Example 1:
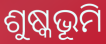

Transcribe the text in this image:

ଶୁଷ୍କଭୂମି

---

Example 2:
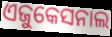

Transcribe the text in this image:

ଏଜୁକେସନାଲ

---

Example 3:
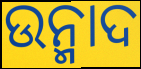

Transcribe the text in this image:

ଉନ୍ମାଦ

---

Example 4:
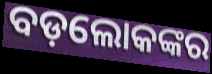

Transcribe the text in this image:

ବଡ଼ଲୋକଙ୍କର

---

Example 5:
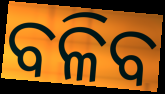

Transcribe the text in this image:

ବଳିବ